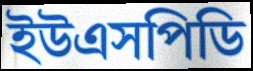
ইউএসপিডি